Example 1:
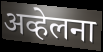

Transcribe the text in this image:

अव्हेलना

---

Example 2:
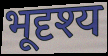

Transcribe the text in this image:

भूदृश्य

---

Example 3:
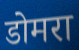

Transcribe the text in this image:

डोमरा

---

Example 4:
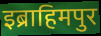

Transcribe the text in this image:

इब्राहिमपुर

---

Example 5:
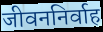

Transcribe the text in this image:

जीवननिर्वाह